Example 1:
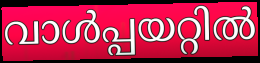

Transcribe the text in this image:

വാൾപ്പയറ്റിൽ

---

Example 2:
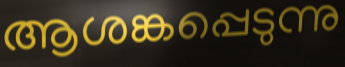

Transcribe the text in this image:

ആശങ്കപ്പെടുന്നു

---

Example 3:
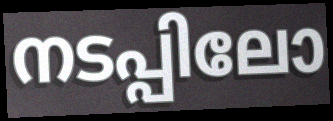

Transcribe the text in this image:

നടപ്പിലോ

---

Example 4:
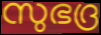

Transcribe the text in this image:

സുഭദ്ര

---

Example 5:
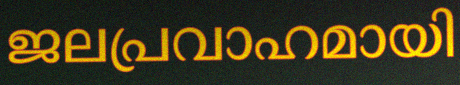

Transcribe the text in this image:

ജലപ്രവാഹമായി